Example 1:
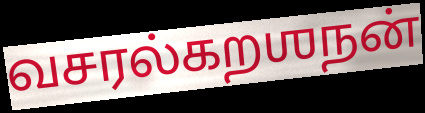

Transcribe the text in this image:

வசரல்கறஶநன்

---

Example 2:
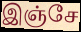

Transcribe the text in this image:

இஞ்சே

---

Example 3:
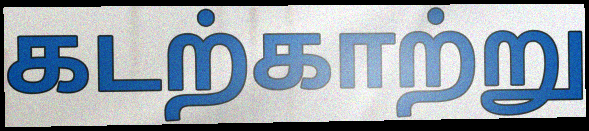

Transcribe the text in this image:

கடற்காற்று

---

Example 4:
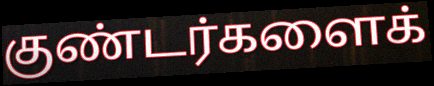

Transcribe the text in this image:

குண்டர்களைக்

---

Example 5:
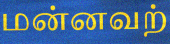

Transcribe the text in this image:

மன்னவற்